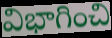
విభాగించి